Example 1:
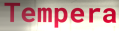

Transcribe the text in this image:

Tempera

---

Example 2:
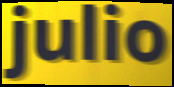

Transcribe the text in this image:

julio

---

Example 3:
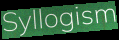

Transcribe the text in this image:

Syllogism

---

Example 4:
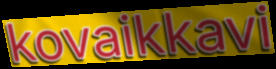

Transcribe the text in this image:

kovaikkavi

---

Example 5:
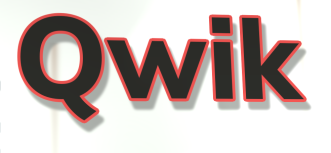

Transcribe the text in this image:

Qwik